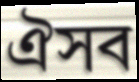
ঐসব